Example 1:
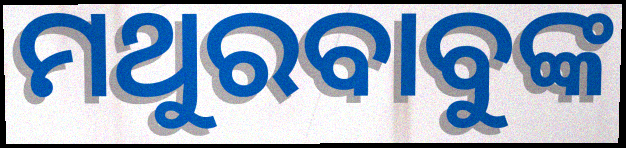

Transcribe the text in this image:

ମଥୁରବାବୁଙ୍କ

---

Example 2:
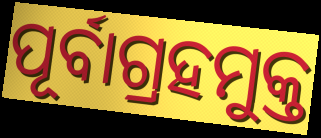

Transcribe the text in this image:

ପୂର୍ବାଗ୍ରହମୁକ୍ତ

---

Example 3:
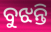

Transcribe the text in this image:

ବୁଝନ୍ତି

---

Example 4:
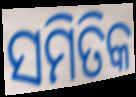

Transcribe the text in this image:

ସମିତିକ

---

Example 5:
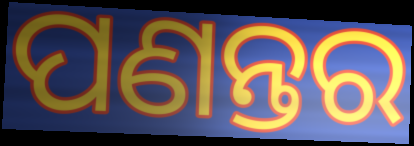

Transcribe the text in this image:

ପଣନ୍ତର